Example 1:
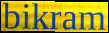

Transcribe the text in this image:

bikram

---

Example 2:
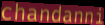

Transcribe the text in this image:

chandanni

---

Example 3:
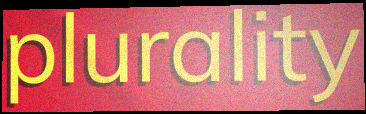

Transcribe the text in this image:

plurality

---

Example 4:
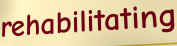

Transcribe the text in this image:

rehabilitating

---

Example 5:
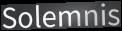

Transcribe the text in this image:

Solemnis